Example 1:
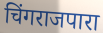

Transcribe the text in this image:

चिंगराजपारा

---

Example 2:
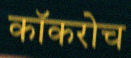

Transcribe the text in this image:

कॉकरोच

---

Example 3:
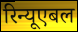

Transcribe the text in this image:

रिन्यूएबल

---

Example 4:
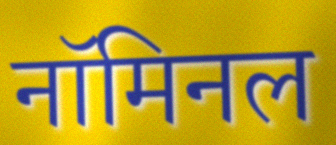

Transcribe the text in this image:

नॉमिनल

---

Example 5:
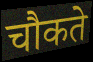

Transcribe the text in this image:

चौकते